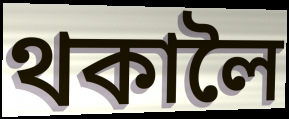
থকালৈ